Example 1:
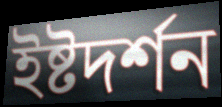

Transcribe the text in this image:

ইষ্টদর্শন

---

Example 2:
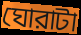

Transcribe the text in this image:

ঘোরাটা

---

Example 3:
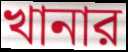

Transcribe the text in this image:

খানার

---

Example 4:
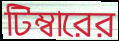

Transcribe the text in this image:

টিম্বারের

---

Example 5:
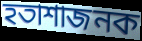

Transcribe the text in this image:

হতাশাজনক